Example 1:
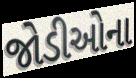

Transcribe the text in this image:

જોડીઓના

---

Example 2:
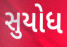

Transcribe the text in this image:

સુયોધ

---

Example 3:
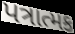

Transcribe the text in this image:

પત્રાત્મક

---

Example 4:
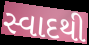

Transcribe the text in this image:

સ્વાદથી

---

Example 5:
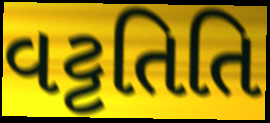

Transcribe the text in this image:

વટ્ટતિતિ